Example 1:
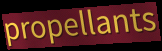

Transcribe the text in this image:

propellants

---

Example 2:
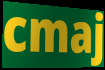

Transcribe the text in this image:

cmaj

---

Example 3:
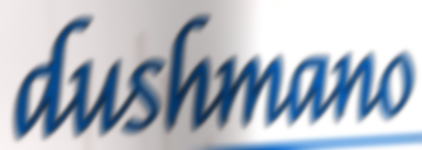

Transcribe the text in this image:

dushmano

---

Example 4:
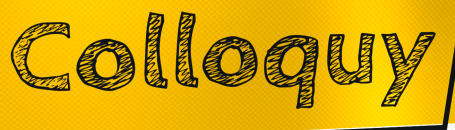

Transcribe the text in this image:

Colloquy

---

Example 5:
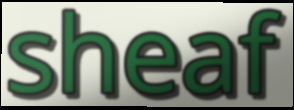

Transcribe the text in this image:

sheaf